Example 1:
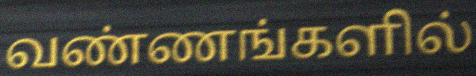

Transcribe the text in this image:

வண்ணங்களில்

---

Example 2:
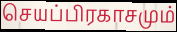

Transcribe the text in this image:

செயப்பிரகாசமும்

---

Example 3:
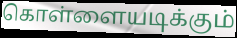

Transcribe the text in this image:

கொள்ளையடிக்கும்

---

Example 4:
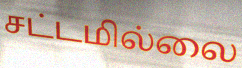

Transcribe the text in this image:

சட்டமில்லை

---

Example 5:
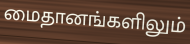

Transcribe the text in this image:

மைதானங்களிலும்